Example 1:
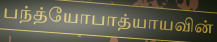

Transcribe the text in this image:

பந்த்யோபாத்யாயவின்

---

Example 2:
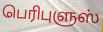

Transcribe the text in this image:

பெரிபுளுஸ்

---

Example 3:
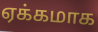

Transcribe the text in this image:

ஏக்கமாக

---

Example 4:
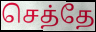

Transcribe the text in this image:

செத்தே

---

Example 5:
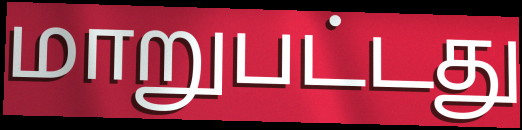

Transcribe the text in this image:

மாறுபட்டது